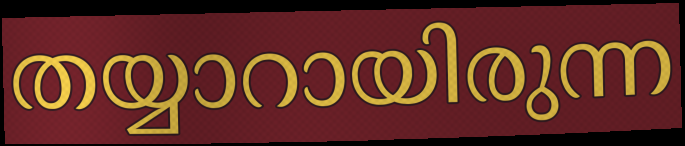
തയ്യാറായിരുന്ന